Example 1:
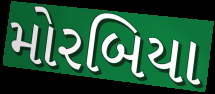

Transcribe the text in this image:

મોરબિયા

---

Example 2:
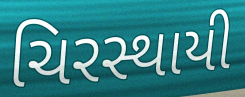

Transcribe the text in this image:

ચિરસ્થાયી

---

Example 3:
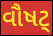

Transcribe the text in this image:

વૌષટ્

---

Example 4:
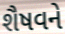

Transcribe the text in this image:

શૈષવને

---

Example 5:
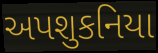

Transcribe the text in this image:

અપશુકનિયા